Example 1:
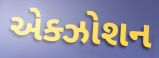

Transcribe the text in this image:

એક્ઝોશન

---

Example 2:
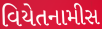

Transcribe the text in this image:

વિયેતનામીસ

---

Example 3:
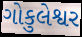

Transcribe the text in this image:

ગોકુલેશ્વર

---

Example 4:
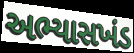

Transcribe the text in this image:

અભ્યાસખંડ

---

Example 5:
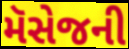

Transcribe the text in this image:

મૅસેજની